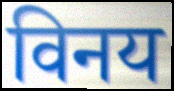
विनय